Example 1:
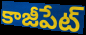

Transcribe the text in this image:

కాజీపేట్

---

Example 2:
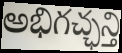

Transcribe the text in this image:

అభిగచ్ఛన్తి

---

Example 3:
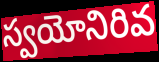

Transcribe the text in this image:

స్వయోనిరివ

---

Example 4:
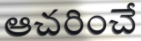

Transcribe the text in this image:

ఆచరించే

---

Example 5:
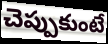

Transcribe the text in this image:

చెప్పుకుంటే